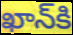
ఖాన్‌కి